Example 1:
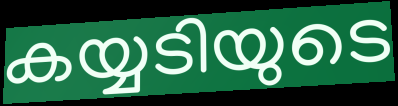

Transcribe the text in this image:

കയ്യടിയുടെ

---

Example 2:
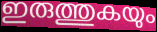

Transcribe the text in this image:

ഇരുത്തുകയും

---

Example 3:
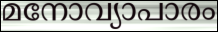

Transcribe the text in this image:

മനോവ്യാപാരം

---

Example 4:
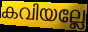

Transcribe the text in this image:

കവിയല്ലേ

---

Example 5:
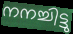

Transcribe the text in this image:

നനച്ചിട്ടു